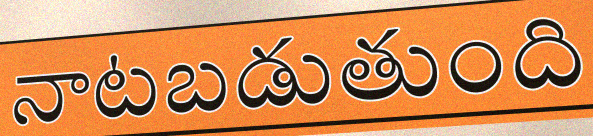
నాటబడుతుంది